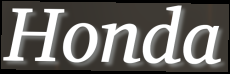
Honda